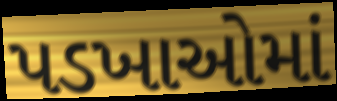
પડખાઓમાં